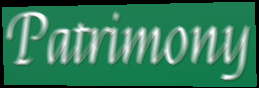
Patrimony